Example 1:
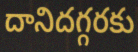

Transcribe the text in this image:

దానిదగ్గరకు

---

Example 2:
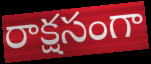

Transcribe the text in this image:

రాక్షసంగా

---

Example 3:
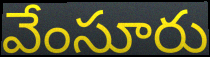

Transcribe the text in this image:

వేంసూరు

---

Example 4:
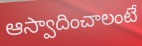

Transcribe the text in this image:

ఆస్వాదించాలంటే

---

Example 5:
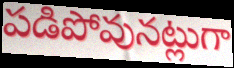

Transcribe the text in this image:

పడిపోవునట్లుగా